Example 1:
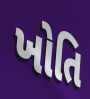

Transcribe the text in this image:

ખોતિ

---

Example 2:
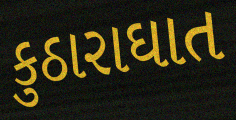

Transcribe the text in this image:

કુઠારાઘાત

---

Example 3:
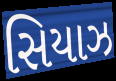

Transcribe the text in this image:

સિયાઝ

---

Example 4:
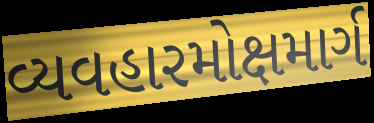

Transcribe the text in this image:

વ્યવહારમોક્ષમાર્ગ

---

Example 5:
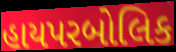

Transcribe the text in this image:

હાયપરબોલિક